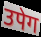
उपेग